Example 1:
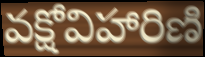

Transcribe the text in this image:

వక్షోవిహారిణి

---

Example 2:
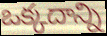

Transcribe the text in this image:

ఒక్కదాన్ని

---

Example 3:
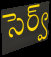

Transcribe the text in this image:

సెర్వ్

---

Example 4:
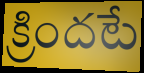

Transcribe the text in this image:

క్రిందటే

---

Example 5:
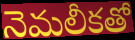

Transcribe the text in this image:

నెమలీకతో